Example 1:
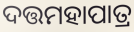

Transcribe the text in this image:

ଦତ୍ତମହାପାତ୍ର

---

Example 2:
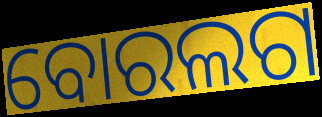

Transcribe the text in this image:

ବୋରଲଗ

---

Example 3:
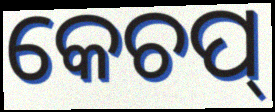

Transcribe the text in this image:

କେଚପ୍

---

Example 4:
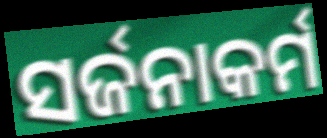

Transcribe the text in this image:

ସର୍ଜନାକର୍ମ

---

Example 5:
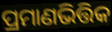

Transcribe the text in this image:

ପ୍ରମାଣଭିତ୍ତିକ